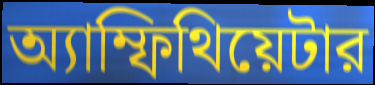
অ্যাম্ফিথিয়েটার